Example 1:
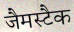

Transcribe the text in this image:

जैमस्टैक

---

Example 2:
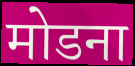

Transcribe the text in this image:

मोडना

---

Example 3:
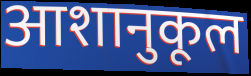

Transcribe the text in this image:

आशानुकूल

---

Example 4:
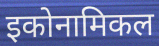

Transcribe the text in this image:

इकोनामिकल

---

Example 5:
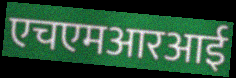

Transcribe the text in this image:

एचएमआरआई